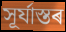
সূৰ্যাস্তৰ